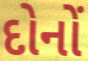
દોનોં